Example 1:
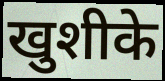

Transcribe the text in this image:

खुशीके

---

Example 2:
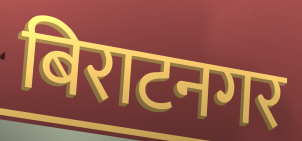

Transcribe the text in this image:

बिराटनगर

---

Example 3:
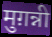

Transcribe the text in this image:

मुग़न्नी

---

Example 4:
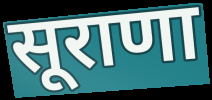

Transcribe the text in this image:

सूराणा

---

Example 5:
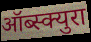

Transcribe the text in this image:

ऑब्स्क्युरा